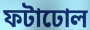
ফটাঢোল